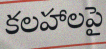
కలహాలపై